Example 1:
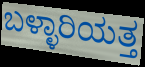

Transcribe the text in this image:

ಬಳ್ಳಾರಿಯತ್ತ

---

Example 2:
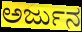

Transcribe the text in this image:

ಅರ್ಜುನ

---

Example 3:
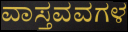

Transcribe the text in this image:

ವಾಸ್ತವವಗಳ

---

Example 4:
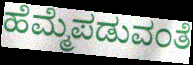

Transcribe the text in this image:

ಹೆಮ್ಮೆಪಡುವಂತೆ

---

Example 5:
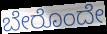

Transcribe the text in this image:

ಬೇರೊಂದೇ